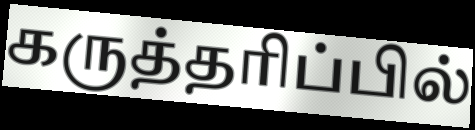
கருத்தரிப்பில்